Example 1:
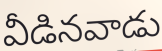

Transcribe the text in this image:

వీడినవాడు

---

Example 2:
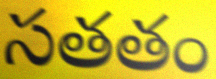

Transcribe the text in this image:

సతతం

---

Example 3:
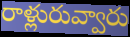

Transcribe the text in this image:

రాళ్లురువ్వారు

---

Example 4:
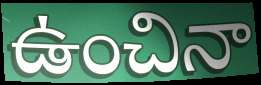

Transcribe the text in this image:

ఉంచినా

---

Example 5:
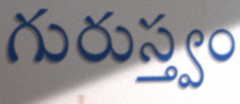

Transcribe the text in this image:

గురుస్త్వం